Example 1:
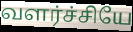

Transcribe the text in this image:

வளர்ச்சியே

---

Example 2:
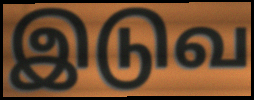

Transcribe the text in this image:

இடுவ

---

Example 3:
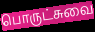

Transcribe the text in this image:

பொருட்சுவை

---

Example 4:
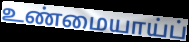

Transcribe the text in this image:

உண்மையாய்ப்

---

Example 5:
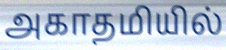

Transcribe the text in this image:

அகாதமியில்